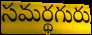
సమర్థగురు